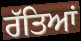
ਰੱਤਿਆਂ